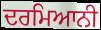
ਦਰਮਿਆਨੀ